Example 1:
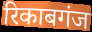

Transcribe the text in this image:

रिकाबगंज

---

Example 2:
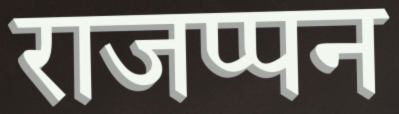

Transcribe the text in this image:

राजप्पन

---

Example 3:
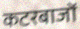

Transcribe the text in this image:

कटरबाजों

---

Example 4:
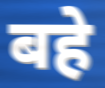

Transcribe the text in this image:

बहे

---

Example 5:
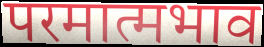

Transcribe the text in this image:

परमात्मभाव